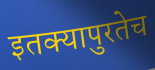
इतक्यापुरतेच